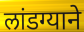
लांडग्याने